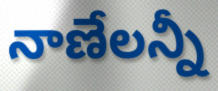
నాణేలన్నీ